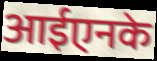
आईएनके